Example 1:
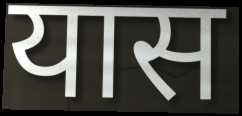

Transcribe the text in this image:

यास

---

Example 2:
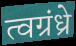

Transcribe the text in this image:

त्वग्रंध्रे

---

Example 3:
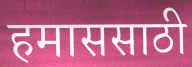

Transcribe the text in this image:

हमाससाठी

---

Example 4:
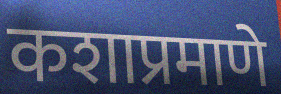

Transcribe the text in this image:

कशाप्रमाणे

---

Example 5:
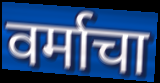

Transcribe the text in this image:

वर्माचा